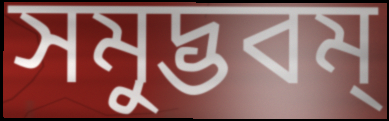
সমুদ্ভবম্